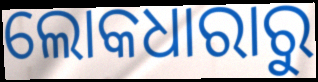
ଲୋକଧାରାରୁ